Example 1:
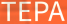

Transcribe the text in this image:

TEPA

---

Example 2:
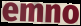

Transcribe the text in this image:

emno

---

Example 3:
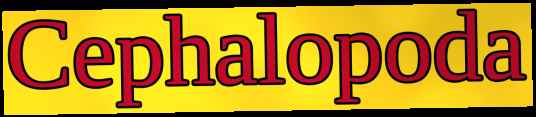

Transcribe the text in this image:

Cephalopoda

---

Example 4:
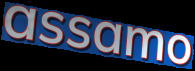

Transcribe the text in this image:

assamo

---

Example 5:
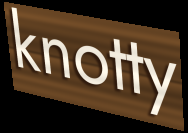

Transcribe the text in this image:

knotty